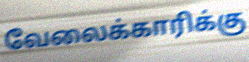
வேலைக்காரிக்கு